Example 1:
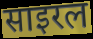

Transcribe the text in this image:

साइरल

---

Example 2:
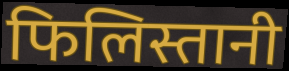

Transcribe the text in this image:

फिलिस्तानी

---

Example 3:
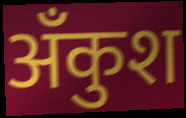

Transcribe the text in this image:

अँकुश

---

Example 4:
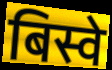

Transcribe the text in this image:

बिस्वे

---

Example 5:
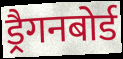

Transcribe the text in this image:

ड्रैगनबोर्ड